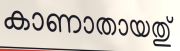
കാണാതായതു്